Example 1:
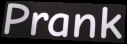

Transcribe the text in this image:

Prank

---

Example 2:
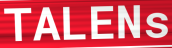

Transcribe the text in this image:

TALENs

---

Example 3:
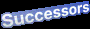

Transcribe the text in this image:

Successors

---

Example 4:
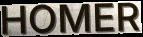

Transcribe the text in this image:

HOMER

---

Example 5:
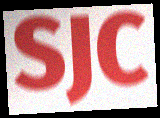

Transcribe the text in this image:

SJC